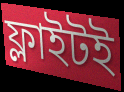
ফ্লাইটই